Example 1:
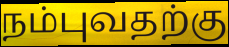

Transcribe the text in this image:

நம்புவதற்கு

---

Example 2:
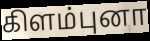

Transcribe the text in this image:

கிளம்புனா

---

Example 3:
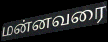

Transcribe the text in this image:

மன்னவரை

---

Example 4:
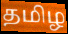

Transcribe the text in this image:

தமிழ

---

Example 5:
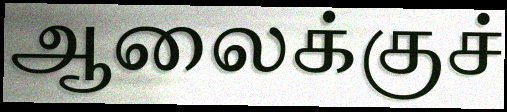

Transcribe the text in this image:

ஆலைக்குச்